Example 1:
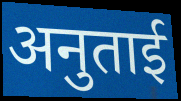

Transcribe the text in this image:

अनुताई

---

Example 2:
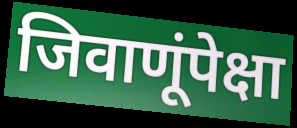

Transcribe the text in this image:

जिवाणूंपेक्षा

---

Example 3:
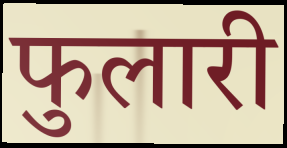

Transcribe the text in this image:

फुलारी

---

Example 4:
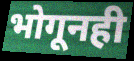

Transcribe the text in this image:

भोगूनही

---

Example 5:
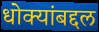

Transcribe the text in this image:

धोक्यांबद्दल